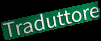
Traduttore